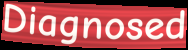
Diagnosed